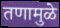
तणामुळे